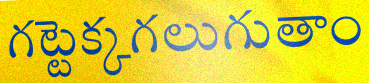
గట్టెక్కగలుగుతాం